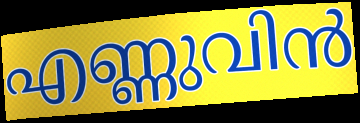
എണ്ണുവിൻ